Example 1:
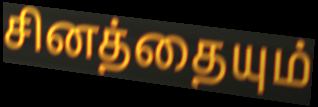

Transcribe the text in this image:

சினத்தையும்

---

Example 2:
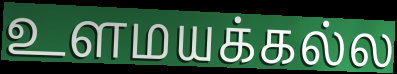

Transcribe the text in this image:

உளமயக்கல்ல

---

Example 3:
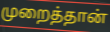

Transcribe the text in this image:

முறைத்தான்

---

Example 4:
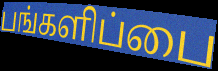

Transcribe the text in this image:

பங்களிப்பை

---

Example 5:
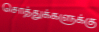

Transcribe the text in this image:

சொத்துக்களுக்கு